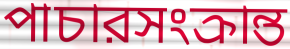
পাচারসংক্রান্ত